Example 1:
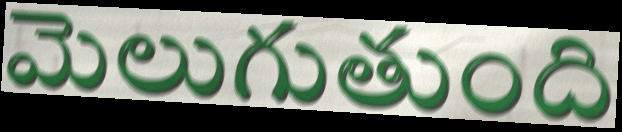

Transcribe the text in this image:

మెలుగుతుంది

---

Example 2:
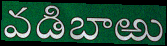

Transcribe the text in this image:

వడిబాఱు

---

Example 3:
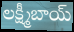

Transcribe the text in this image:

లక్ష్మీబాయ్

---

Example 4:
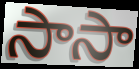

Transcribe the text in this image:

సాసా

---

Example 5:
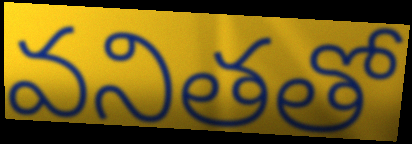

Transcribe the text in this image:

వనితతో